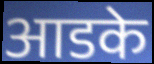
आडके